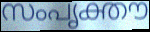
സംപൃക്തൗ